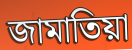
জামাতিয়া